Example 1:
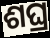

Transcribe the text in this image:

ଶଘ୍ର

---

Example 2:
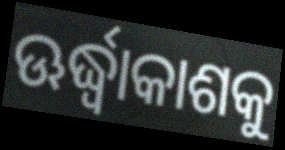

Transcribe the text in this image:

ଊର୍ଦ୍ଧ୍ୱାକାଶକୁ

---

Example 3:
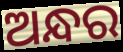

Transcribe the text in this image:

ଅନ୍ଧର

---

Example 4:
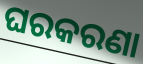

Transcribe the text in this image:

ଘରକରଣା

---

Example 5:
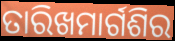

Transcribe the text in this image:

ତାରିଖମାର୍ଗଶିର